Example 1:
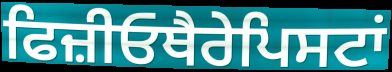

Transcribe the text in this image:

ਫਿਜ਼ੀਓਥੈਰੇਪਿਸਟਾਂ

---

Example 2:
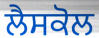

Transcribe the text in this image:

ਲੈਸਕੋਲ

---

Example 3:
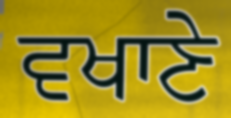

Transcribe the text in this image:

ਵਖਾਣੇ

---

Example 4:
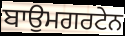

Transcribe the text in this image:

ਬਾਉਮਗਰਟੇਨ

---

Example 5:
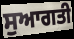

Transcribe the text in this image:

ਸੁਆਗਤੀ